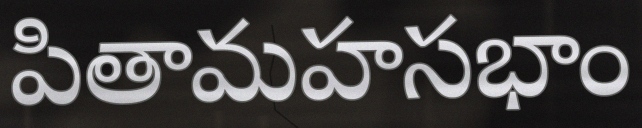
పితామహసభాం